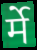
र्मे